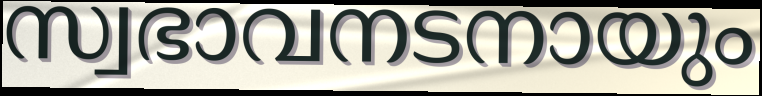
സ്വഭാവനടനായും